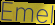
Emel